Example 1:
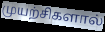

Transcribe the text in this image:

முயற்சிகளால்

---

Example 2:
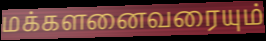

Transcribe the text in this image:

மக்களனைவரையும்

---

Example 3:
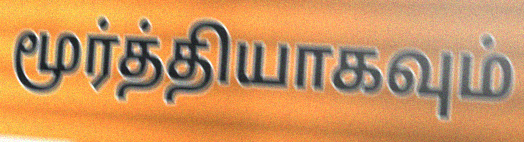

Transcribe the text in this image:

மூர்த்தியாகவும்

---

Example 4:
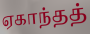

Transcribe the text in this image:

ஏகாந்தத்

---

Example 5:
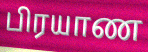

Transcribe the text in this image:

பிரயாண